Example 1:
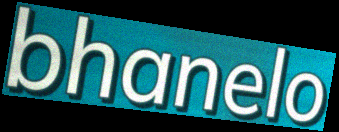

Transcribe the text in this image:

bhanelo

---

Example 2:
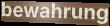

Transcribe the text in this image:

bewahrung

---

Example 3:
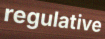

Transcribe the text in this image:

regulative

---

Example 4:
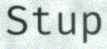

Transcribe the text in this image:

Stup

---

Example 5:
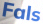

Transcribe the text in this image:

Fals